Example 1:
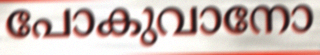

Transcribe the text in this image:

പോകുവാനോ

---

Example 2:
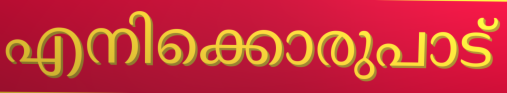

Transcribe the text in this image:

എനിക്കൊരുപാട്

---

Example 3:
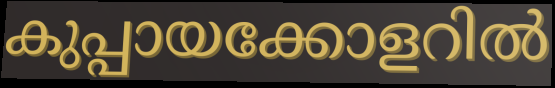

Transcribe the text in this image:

കുപ്പായക്കോളറിൽ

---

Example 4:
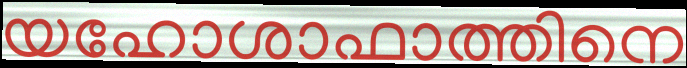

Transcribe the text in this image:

യഹോശാഫാത്തിനെ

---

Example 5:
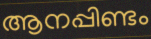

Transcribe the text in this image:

ആനപ്പിണ്ടം